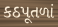
કઠપૂતળાં